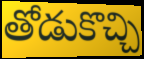
తోడుకొచ్చి